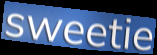
sweetie